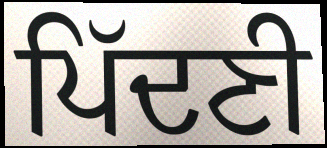
ਪਿੱਦਣੀ